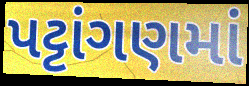
પટ્ટાંગણમાં